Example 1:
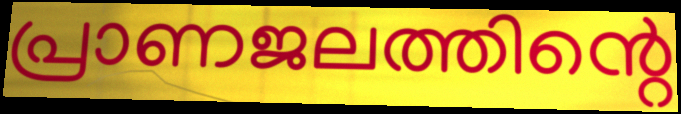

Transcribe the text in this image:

പ്രാണജലത്തിന്റെ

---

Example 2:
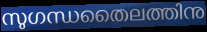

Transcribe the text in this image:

സുഗന്ധതൈലത്തിനു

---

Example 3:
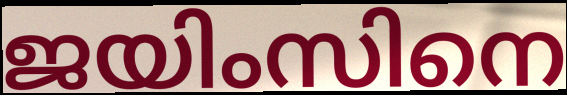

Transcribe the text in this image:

ജയിംസിനെ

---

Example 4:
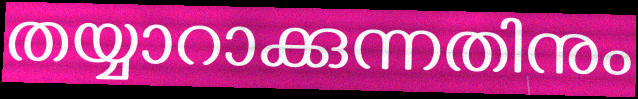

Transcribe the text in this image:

തയ്യാറാക്കുന്നതിനും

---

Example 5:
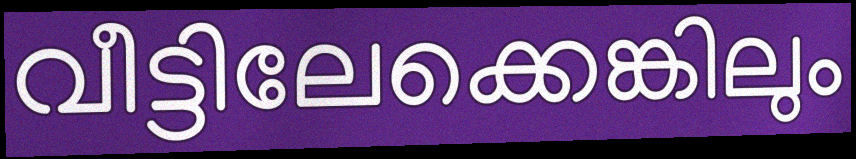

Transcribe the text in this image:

വീട്ടിലേക്കെങ്കിലും